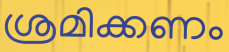
ശ്രമിക്കണം